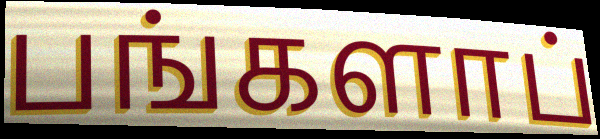
பங்களாப்